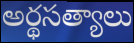
అర్థసత్యాలు